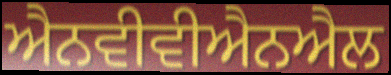
ਐਨਵੀਵੀਐਨਐਲ